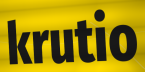
krutio